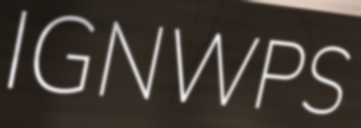
IGNWPS